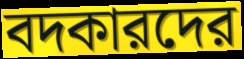
বদকারদের